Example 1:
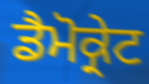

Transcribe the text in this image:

ਡੈਮੋਕ੍ਰੇਟ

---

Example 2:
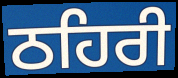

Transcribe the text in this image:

ਠਹਿਰੀ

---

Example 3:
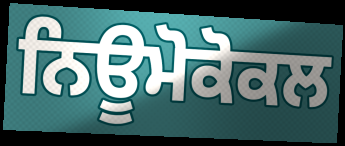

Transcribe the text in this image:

ਨਿਊਮੋਕੋਕਲ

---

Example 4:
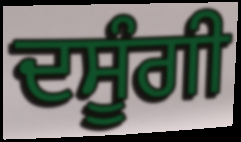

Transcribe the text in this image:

ਦਸੂੰਗੀ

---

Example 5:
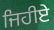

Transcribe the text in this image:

ਜਿਹੀਏ